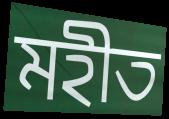
মহীত